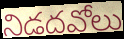
నిడదవోలు